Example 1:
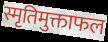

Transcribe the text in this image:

स्मृतिमुक्ताफल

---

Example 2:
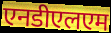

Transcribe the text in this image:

एनडीएलएम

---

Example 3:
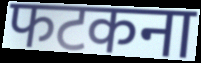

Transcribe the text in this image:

फटकना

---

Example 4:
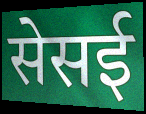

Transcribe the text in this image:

सेसई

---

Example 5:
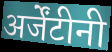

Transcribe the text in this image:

अर्जेंटीनी